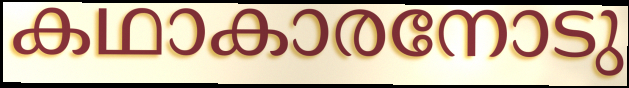
കഥാകാരനോടു